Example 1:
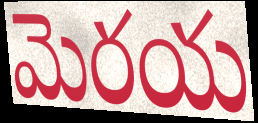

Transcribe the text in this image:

మెరయ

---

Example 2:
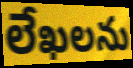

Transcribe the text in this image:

లేఖలను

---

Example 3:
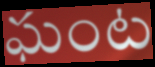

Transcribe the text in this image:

ఘంట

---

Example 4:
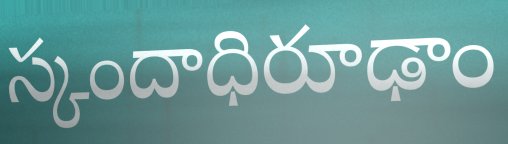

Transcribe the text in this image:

స్కందాధిరూఢాం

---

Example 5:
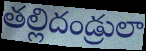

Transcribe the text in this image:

తల్లిదండ్రులా